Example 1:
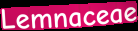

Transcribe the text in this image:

Lemnaceae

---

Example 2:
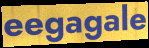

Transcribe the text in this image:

eegagale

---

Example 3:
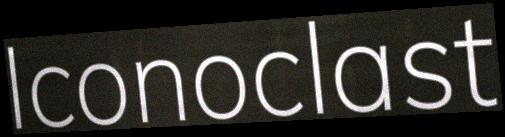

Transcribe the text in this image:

Iconoclast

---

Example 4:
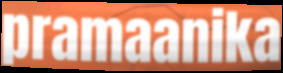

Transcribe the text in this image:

pramaanika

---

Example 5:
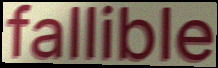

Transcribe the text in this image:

fallible